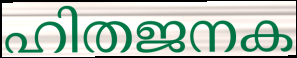
ഹിതജനക